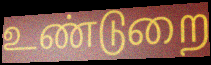
உண்டுறை